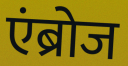
एंब्रोज